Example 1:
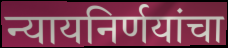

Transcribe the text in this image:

न्यायनिर्णयांचा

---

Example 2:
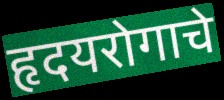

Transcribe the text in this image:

हृदयरोगाचे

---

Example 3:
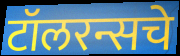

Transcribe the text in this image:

टॉलरन्सचे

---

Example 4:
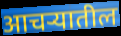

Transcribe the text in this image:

आचऱ्यातील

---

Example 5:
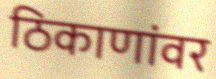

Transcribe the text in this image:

ठिकाणांवर